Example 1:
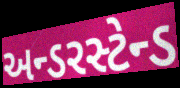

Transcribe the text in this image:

અન્ડરસ્ટેન્ડ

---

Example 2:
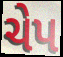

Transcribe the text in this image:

ચેપ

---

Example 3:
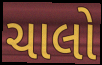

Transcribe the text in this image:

ચાલો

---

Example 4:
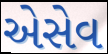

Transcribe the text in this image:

એસેવ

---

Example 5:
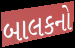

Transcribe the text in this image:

બાલકનો